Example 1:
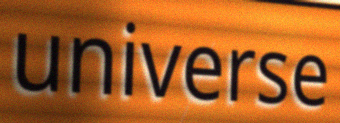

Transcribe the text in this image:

universe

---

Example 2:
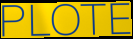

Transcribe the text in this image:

PLOTE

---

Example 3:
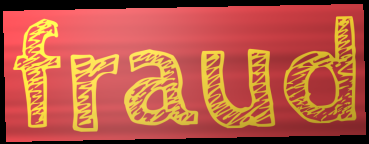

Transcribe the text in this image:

fraud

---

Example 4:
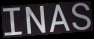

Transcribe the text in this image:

INAS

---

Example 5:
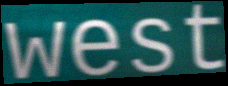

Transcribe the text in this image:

west